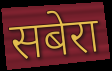
सबेरा